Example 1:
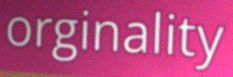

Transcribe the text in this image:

orginality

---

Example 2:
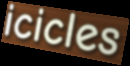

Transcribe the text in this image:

icicles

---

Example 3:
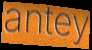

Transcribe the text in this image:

antey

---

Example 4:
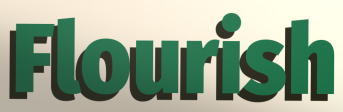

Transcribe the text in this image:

Flourish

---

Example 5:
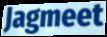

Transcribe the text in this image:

Jagmeet